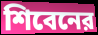
শিবেনের